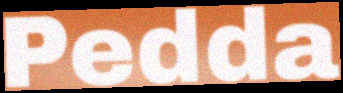
Pedda